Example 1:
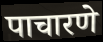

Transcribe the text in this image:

पाचारणे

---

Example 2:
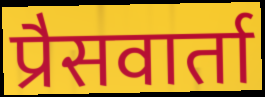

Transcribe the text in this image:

प्रैसवार्ता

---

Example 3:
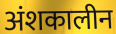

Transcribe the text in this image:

अंशकालीन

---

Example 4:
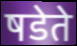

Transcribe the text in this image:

षडेते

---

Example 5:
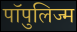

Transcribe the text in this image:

पॉपुलिज्म